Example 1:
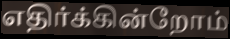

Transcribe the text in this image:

எதிர்க்கின்றோம்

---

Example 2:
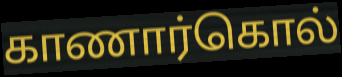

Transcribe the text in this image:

காணார்கொல்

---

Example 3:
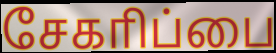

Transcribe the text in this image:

சேகரிப்பை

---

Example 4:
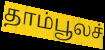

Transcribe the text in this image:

தாம்பூலச்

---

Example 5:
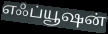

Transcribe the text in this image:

எஃப்யூஷன்